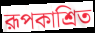
রূপকাশ্রিত